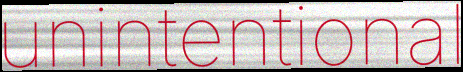
unintentional